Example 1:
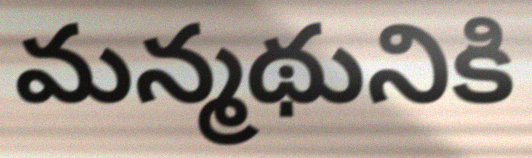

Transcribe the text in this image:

మన్మథునికి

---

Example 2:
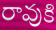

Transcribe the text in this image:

రావుకి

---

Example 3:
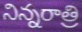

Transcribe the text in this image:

నిన్నరాత్రి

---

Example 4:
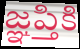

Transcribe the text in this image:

జ్ఞప్తికి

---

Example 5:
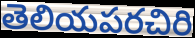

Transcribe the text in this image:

తెలియపరచిరి